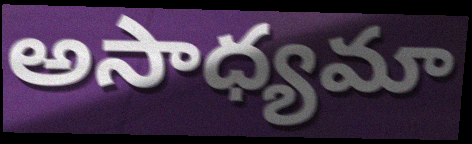
అసాధ్యమా